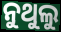
ନୁଥୁଲୁ